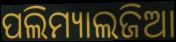
ପଲିମ୍ୟାଲଜିଆ